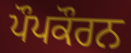
ਪੌਪਕੌਰਨ